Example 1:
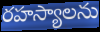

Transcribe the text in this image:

రహస్యాలను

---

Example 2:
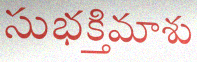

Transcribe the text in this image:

సుభక్తిమాశు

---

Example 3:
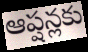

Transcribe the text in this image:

ఆప్షన్లకు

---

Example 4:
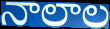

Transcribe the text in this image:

నాలాల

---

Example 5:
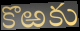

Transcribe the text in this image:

కొఱకు